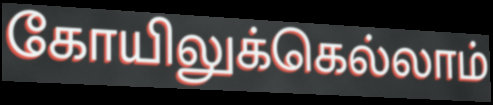
கோயிலுக்கெல்லாம்